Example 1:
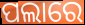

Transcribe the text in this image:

ପଲାରେ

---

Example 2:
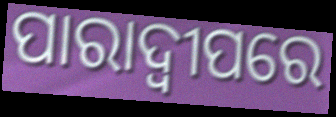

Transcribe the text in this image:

ପାରାଦ୍ୱୀପରେ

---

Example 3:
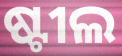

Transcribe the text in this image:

ଷ୍ଟୀଲ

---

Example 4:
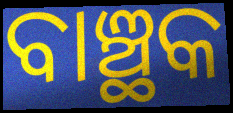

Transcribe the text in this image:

ବାଞ୍ଛକ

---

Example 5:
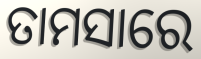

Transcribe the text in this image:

ତାମସାରେ